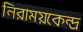
নিরাময়কেন্দ্র